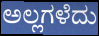
ಅಲ್ಲಗಳೆದು